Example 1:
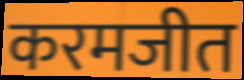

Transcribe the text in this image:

करमजीत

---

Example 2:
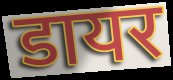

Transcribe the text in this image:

डायर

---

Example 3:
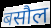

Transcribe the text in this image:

बसौल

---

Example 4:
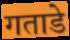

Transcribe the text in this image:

गताडे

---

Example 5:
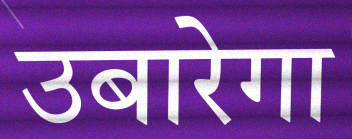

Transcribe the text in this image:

उबारेगा